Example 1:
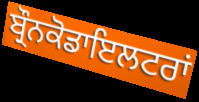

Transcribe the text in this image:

ਬ੍ਰੌਨਕੋਡਾਇਲਟਰਾਂ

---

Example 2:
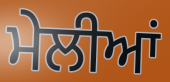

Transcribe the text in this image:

ਮੇਲੀਆਂ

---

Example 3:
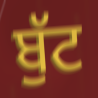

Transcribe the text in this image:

ਬੁੱਟ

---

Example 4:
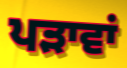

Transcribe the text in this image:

ਪੜਾਵਾਂ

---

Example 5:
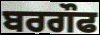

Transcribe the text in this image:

ਬਰਗੌਫ